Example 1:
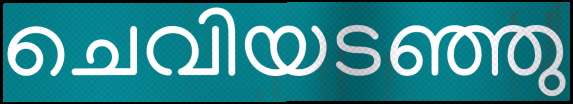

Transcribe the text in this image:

ചെവിയടഞ്ഞു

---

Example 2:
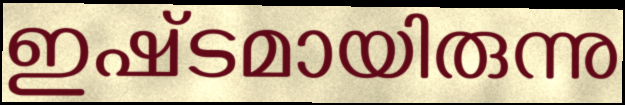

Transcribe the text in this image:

ഇഷ്‌ടമായിരുന്നു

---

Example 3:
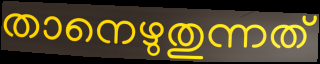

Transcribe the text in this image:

താനെഴുതുന്നത്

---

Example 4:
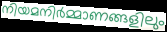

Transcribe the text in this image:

നിയമനിർമ്മാണങ്ങളിലും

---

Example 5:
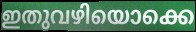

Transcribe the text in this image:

ഇതുവഴിയൊക്കെ